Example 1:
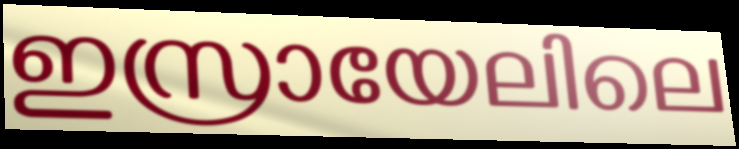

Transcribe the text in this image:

ഇസ്രായേലിലെ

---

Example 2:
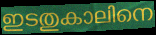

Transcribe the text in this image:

ഇടതുകാലിനെ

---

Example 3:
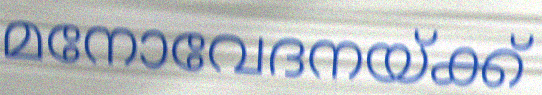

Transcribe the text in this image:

മനോവേദനയ്ക്ക്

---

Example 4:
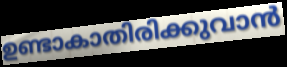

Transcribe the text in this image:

ഉണ്ടാകാതിരിക്കുവാൻ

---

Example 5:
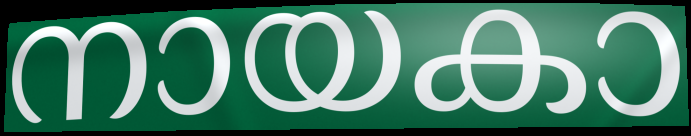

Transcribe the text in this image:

നായകാ